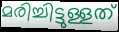
മരിച്ചിട്ടുള്ളത്